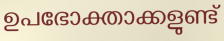
ഉപഭോക്താക്കളുണ്ട്